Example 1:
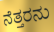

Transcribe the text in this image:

ನೆತ್ತರನು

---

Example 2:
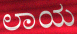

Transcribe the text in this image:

ಲಾಯ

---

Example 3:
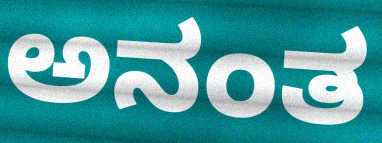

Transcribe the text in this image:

ಅನಂತ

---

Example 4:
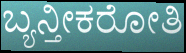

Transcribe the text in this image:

ಬ್ಯನ್ತೀಕರೋತಿ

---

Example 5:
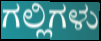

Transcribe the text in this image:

ಗಲ್ಲಿಗಳು